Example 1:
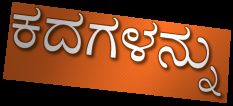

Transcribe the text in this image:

ಕದಗಳನ್ನು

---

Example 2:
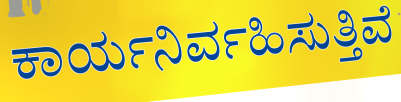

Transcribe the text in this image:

ಕಾರ್ಯನಿರ್ವಹಿಸುತ್ತಿವೆ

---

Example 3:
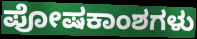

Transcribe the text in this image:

ಪೋಷಕಾಂಶಗಳು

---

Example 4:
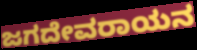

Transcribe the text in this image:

ಜಗದೇವರಾಯನ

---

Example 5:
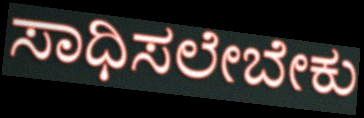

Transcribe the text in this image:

ಸಾಧಿಸಲೇಬೇಕು